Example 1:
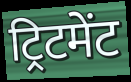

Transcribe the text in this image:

ट्रिटमेंट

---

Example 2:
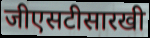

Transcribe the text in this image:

जीएसटीसारखी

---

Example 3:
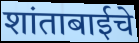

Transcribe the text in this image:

शांताबाईचे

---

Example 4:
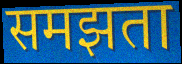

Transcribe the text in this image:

समझता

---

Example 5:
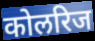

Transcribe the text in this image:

कोलरिज